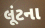
લૂંટના